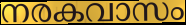
നരകവാസം